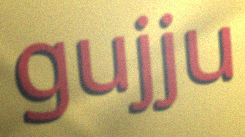
gujju